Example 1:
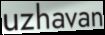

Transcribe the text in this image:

uzhavan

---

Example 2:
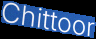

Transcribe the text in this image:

Chittoor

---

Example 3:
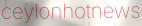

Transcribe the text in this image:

ceylonhotnews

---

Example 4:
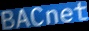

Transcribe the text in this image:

BACnet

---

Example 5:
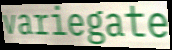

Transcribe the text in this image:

variegate